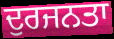
ਦੁਰਜਨਤਾ